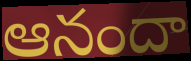
ఆనందా